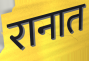
रानात